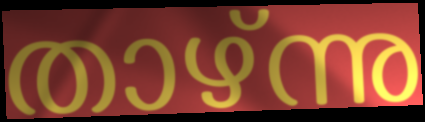
താഴ്ന്നു